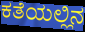
ಕತೆಯಲ್ಲಿನ